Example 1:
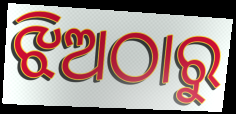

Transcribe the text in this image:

ଝିଅଠାରୁ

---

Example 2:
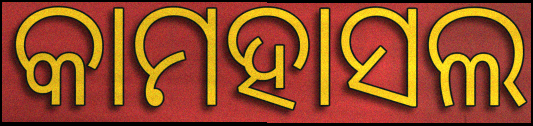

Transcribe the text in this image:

କାମହାସଲ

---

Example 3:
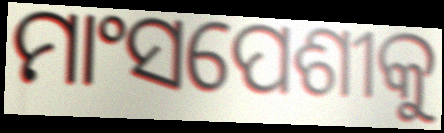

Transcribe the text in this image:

ମାଂସପେଶୀକୁ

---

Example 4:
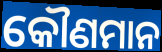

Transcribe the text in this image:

କୌଣମାନ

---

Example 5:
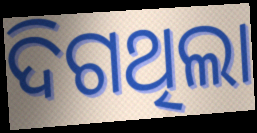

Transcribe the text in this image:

ଦିଗଥିଲା